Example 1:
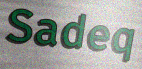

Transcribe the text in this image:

Sadeq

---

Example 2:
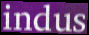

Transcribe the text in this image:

indus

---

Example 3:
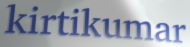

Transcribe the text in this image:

kirtikumar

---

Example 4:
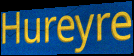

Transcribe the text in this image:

Hureyre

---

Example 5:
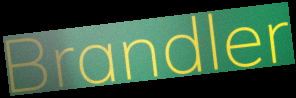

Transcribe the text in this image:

Brandler